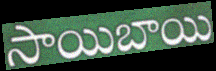
సాయిబాయి